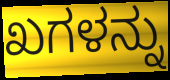
ಖಗಳನ್ನು